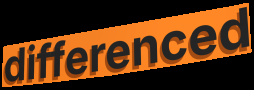
differenced